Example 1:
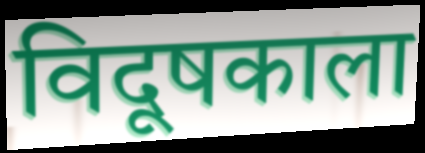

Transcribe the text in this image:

विदूषकाला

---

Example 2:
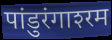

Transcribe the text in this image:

पांडुरंगाश्रम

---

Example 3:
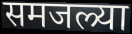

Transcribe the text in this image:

समजल्या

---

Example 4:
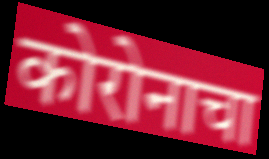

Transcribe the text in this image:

कोरोनाचा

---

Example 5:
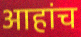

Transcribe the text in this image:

आहांच